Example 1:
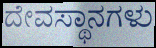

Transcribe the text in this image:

ದೇವಸ್ಥಾನಗಳು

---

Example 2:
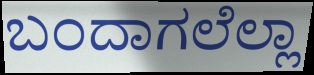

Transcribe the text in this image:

ಬಂದಾಗಲೆಲ್ಲಾ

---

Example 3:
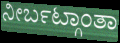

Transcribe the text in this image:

ನೀರ್ಬಟ್ಗಾಂತಾ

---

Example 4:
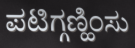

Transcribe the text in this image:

ಪಟಿಗ್ಗಣ್ಹಿಂಸು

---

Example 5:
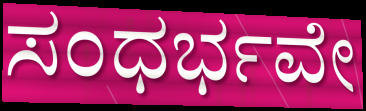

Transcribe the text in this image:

ಸಂಧರ್ಭವೇ